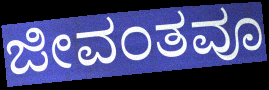
ಜೀವಂತವೂ